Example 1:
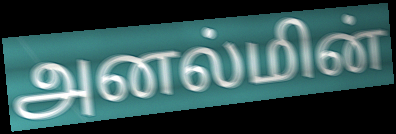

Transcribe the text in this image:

அனல்மின்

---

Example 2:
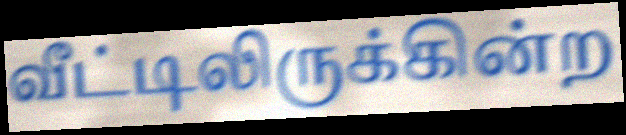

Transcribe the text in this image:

வீட்டிலிருக்கின்ற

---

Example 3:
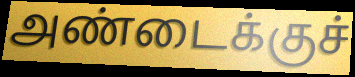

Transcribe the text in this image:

அண்டைக்குச்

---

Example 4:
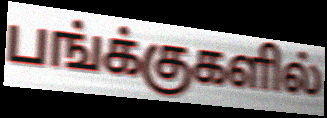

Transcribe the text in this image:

பங்க்குகளில்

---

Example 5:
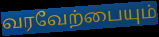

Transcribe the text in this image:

வரவேற்பையும்